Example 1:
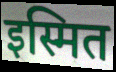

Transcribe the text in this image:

इस्मित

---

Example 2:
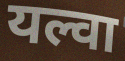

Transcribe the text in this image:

यल्वा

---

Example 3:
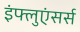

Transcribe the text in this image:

इंफ्लुएंसर्स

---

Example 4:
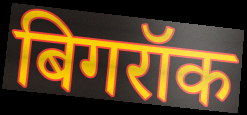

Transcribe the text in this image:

बिगरॉक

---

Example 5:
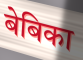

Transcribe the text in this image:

बेबिका